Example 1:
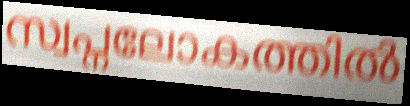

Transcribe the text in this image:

സ്വപ്നലോകത്തിൽ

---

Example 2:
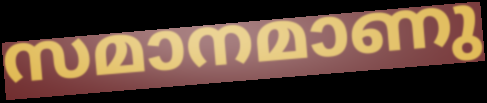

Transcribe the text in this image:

സമാനമാണു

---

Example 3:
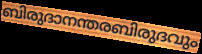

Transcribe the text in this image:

ബിരുദാനന്തരബിരുദവും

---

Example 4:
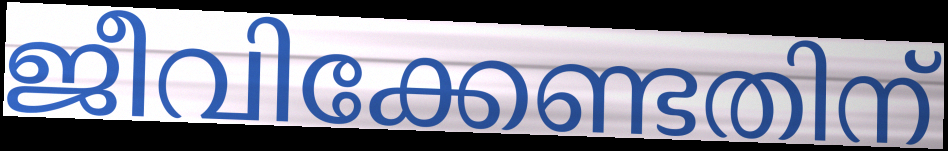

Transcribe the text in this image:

ജീവിക്കേണ്ടതിന്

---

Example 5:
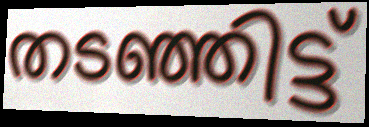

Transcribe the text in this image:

തടഞ്ഞിട്ട്